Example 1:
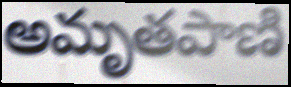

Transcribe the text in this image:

అమృతపాణి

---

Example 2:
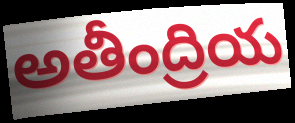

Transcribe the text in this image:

అతీంద్రియ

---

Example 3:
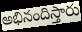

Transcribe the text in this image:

అభినందిస్తారు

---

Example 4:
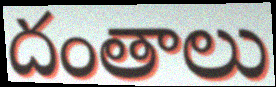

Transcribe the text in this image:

దంతాలు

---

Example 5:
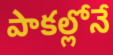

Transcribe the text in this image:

పాకల్లోనే